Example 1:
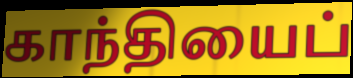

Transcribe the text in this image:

காந்தியைப்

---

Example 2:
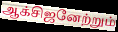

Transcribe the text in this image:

ஆக்சிஜனேற்றும்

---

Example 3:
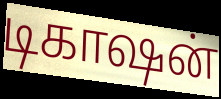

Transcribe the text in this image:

டிகாஷன்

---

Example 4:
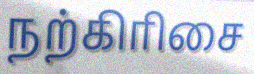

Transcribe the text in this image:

நற்கிரிசை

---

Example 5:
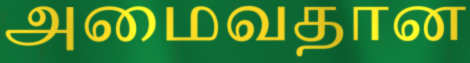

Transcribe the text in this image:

அமைவதான